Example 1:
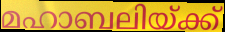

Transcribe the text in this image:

മഹാബലിയ്ക്ക്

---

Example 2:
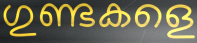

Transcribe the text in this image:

ഗുണ്ടകളെ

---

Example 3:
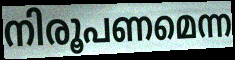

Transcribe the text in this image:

നിരൂപണമെന്ന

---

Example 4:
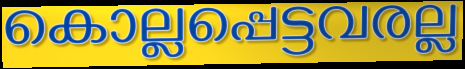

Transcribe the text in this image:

കൊല്ലപ്പെട്ടവരല്ല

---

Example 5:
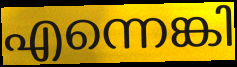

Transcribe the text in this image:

എന്നെങ്കി